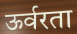
ऊर्वरता